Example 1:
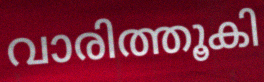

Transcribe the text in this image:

വാരിത്തൂകി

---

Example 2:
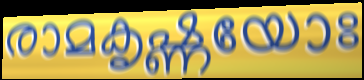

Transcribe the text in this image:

രാമകൃഷ്ണയോഃ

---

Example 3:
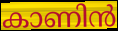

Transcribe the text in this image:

കാണിൻ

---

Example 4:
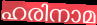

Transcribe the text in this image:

ഹരിനാമ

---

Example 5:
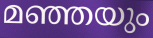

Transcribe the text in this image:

മഞ്ഞയും